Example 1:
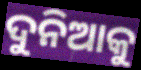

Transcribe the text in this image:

ଦୁନିଆକୁ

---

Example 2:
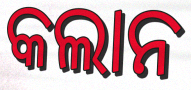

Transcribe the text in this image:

କଲାନ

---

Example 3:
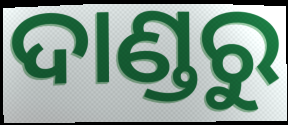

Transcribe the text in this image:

ଦାଣ୍ଡରୁ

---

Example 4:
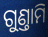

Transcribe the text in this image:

ଗୁଣ୍ତାମି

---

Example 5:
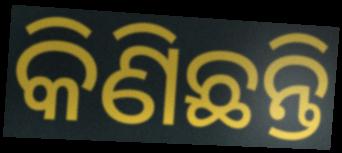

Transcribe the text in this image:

କିଣିଛନ୍ତି